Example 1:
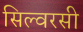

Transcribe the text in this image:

सिल्वरसी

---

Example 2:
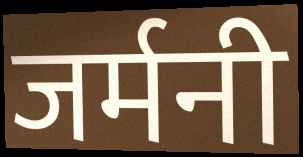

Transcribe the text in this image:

जर्मनी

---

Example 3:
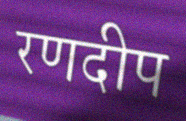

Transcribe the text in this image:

रणदीप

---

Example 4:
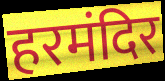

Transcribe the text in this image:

हरमंदिर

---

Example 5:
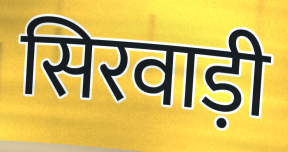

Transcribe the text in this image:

सिरवाड़ी